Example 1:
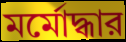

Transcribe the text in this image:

মর্মোদ্ধার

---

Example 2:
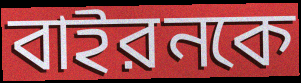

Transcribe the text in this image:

বাইরনকে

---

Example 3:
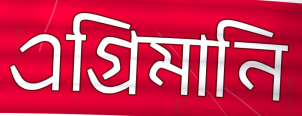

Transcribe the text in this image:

এগ্রিমানি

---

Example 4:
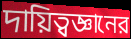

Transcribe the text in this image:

দায়িত্বজ্ঞানের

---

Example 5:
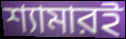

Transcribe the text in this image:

শ্যামারই